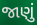
જાણું